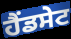
ਹੈਂਡਸੇਟ